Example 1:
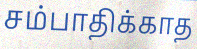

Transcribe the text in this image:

சம்பாதிக்காத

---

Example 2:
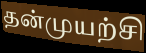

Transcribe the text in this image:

தன்முயற்சி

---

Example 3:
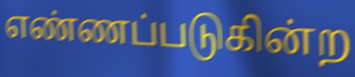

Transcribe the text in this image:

எண்ணப்படுகின்ற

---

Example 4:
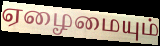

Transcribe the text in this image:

ஏழைமையும்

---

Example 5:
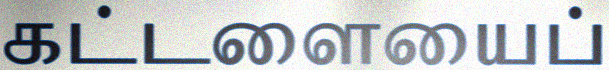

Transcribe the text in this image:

கட்டளையைப்